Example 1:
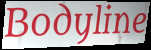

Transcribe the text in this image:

Bodyline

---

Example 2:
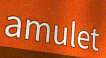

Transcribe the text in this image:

amulet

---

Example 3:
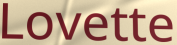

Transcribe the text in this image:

Lovette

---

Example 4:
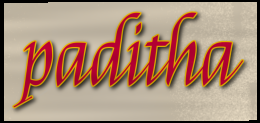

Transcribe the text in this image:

paditha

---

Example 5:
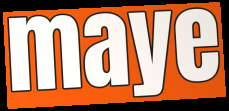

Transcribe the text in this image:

maye